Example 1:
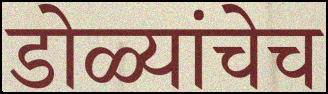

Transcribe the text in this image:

डोळ्यांचेच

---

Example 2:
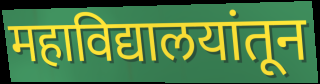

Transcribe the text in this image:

महाविद्यालयांतून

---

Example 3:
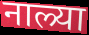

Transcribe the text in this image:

नाल्या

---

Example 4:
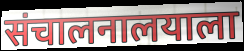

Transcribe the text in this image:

संचालनालयाला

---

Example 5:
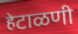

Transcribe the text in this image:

हेटाळणी